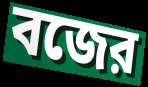
বজের